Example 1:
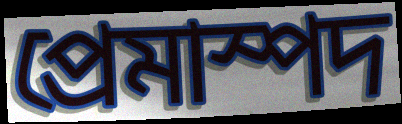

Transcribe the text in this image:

প্রেমাস্পদ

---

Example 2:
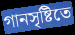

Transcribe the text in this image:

গানসৃষ্টিতে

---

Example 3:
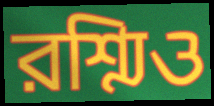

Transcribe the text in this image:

রশ্মিও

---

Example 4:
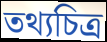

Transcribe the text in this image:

তথ্যচিত্র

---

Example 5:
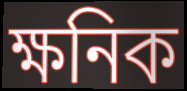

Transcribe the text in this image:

ক্ষনিক